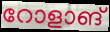
റോളാങ്